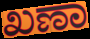
ಖಣಾ